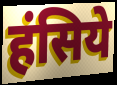
हंसिये